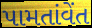
પામતાંવેંત